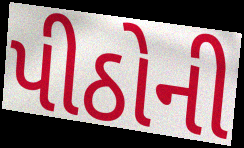
પીઠોની